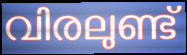
വിരലുണ്ട്